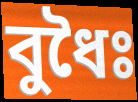
বুধৈঃ